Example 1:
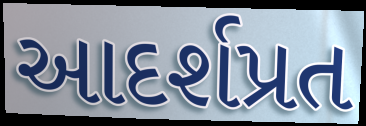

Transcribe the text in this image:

આદર્શપ્રત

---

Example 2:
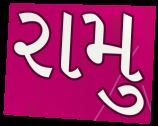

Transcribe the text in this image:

રામુ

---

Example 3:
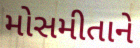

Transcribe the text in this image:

મોસમીતાને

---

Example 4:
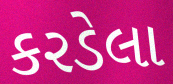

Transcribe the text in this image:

કરડેલા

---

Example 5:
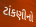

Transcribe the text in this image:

ટાંકણીનો